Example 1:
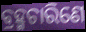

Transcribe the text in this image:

ବ୍ରହ୍ମଚାରିଣେ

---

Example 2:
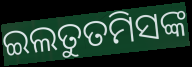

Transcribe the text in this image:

ଇଲତୁତମିସଙ୍କ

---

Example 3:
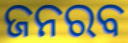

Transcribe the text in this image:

ଜନରବ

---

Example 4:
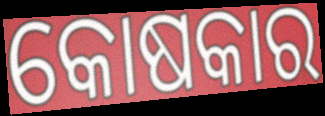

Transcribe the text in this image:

କୋଷକାର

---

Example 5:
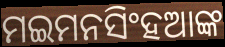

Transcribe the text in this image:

ମଇମନସିଂହଆଙ୍କ